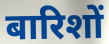
बारिशों